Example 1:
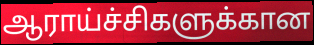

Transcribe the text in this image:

ஆராய்ச்சிகளுக்கான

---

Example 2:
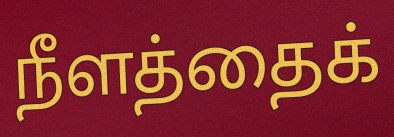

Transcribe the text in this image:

நீளத்தைக்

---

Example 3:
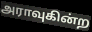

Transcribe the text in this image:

அராவுகின்ற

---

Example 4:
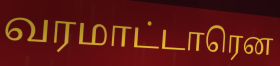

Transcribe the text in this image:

வரமாட்டாரென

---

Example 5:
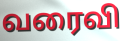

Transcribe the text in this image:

வரைவி